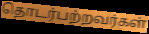
தொடர்பற்றவர்கள்